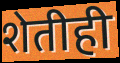
शेतीही